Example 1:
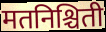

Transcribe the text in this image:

मतनिश्चिती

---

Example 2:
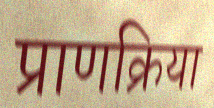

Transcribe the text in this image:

प्राणक्रिया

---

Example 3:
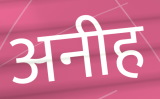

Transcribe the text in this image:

अनीह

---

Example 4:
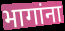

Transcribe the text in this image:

भागांना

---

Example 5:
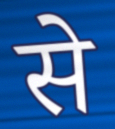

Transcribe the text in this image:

से